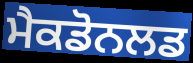
ਮੈਕਡੋਨਲਡ